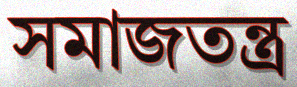
সমাজতন্ত্ৰ